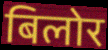
बिलोर